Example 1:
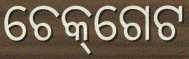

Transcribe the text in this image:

ଚେକ୍‌ଗେଟ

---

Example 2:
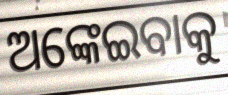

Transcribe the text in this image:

ଅଙ୍କେଇବାକୁ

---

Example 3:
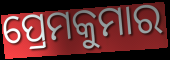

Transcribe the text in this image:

ପ୍ରେମକୁମାର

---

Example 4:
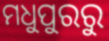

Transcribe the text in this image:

ମଧୁପୁରରୁ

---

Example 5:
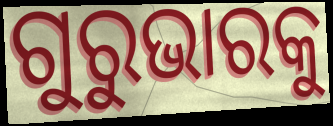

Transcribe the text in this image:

ଗୁରୁଭାରକୁ